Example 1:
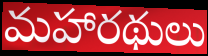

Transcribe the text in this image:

మహారథులు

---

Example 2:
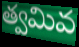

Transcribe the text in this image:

త్వమివ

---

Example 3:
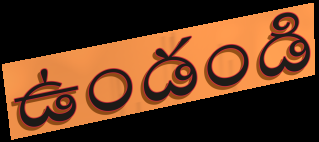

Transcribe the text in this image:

ఉండండి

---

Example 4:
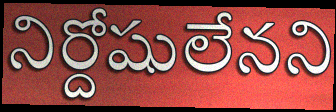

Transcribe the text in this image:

నిర్దోషులేనని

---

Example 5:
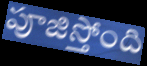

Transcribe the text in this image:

పూజిస్తోంది